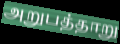
அறுபத்தாறு